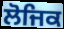
ਲੋਜਿਕ